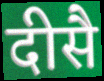
दीसै